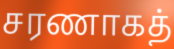
சரணாகத்